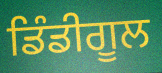
ਡਿੰਡੀਗੂਲ